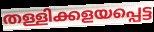
തള്ളിക്കളയപ്പെട്ട